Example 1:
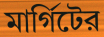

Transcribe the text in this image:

মার্গিটের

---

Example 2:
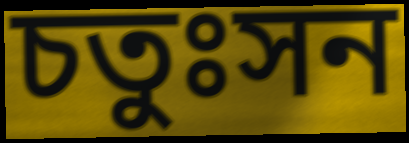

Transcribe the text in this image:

চতুঃসন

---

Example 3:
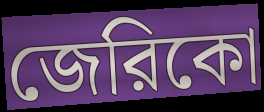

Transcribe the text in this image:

জেরিকো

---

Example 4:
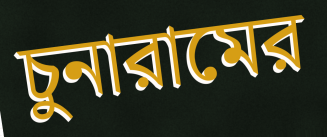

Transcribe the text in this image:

চুনারামের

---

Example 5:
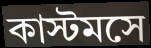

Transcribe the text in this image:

কাস্টমসে